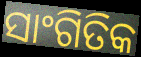
ସାଂଗିତିକ